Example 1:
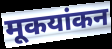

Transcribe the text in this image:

मूकयांकन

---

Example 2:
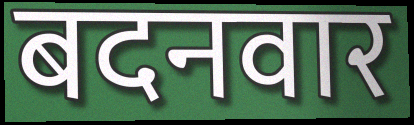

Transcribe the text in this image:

बदनवार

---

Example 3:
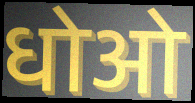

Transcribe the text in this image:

धोओ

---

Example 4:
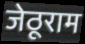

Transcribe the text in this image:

जेठूराम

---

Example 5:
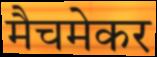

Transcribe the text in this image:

मैचमेकर